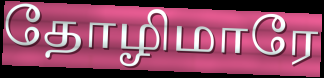
தோழிமாரே